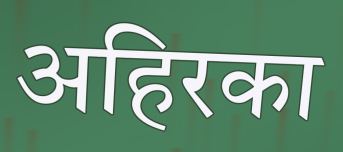
अहिरका